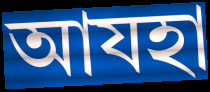
আযহা